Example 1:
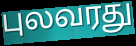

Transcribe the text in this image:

புலவரது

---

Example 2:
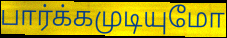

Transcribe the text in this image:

பார்க்கமுடியுமோ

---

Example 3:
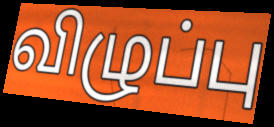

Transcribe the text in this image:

விழுப்பு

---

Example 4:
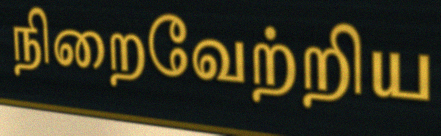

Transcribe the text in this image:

நிறைவேற்றிய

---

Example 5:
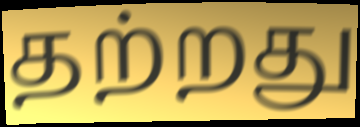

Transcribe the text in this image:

தற்றது